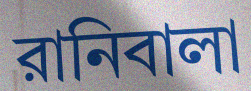
রানিবালা